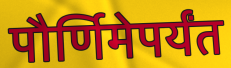
पौर्णिमेपर्यंत